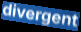
divergent